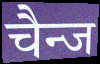
चैन्ज